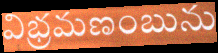
విభ్రమణంబును